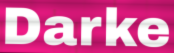
Darke